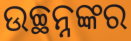
ଉଚ୍ଛନ୍ନଙ୍କର